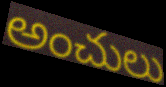
అంచులు